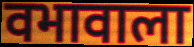
वभावाला